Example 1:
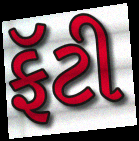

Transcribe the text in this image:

ફૅટી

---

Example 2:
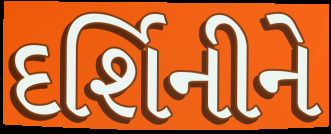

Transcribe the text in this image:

દર્શિનીને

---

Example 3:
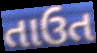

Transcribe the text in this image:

તાઉત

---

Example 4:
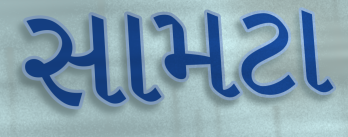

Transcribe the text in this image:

સામટા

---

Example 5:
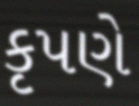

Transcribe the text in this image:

કૃપણે